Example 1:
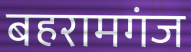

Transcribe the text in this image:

बहरामगंज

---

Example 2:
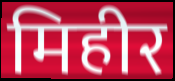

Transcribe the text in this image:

मिहीर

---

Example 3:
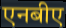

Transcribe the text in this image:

एनबीए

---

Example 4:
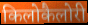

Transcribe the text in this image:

किलोकैलोरी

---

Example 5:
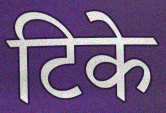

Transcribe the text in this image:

टिके